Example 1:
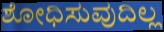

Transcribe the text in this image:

ಶೋಧಿಸುವುದಿಲ್ಲ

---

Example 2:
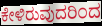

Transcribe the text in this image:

ಕೇಳಿರುವುದರಿಂದ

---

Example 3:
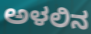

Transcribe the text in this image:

ಅಳಲಿನ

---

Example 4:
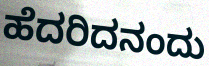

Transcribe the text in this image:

ಹೆದರಿದನಂದು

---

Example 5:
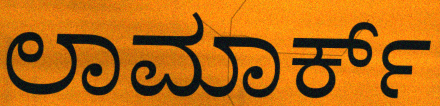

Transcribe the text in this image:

ಲಾಮಾರ್ಕ್